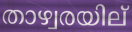
താഴ്വരയില്